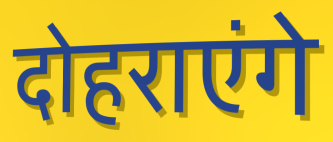
दोहराएंगे